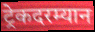
ट्रेकदरम्यान